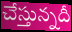
చేస్తున్నదీ